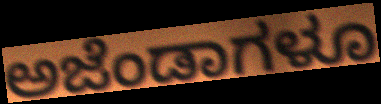
ಅಜೆಂಡಾಗಳೂ